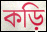
কড়ি